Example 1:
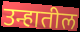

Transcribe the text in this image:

उन्हातील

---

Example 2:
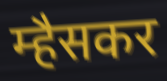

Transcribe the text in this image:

म्हैसकर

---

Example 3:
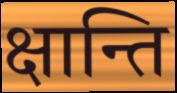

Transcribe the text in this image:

क्षान्ति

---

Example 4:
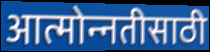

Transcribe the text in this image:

आत्मोन्नतीसाठी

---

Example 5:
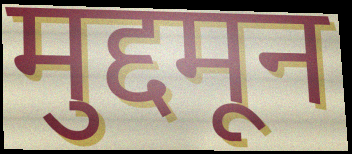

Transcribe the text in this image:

मुद्दमून